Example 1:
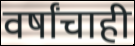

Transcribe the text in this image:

वर्षांचाही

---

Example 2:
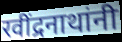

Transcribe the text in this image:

रवींद्रनाथांनी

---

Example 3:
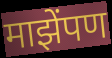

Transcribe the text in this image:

माझेंपण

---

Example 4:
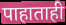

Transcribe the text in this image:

पाहाताही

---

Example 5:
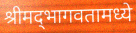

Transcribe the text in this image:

श्रीमद्‌भागवतामध्ये